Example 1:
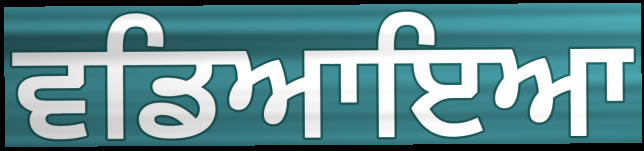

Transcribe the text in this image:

ਵਡਿਆਇਆ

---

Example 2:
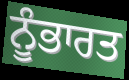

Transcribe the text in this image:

ਨੂੰਭਾਰਤ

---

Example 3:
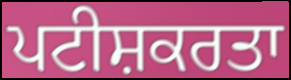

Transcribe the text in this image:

ਪਟੀਸ਼ਕਰਤਾ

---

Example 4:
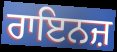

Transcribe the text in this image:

ਰਾਇਨਜ਼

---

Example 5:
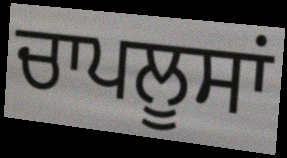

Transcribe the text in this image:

ਚਾਪਲੂਸਾਂ